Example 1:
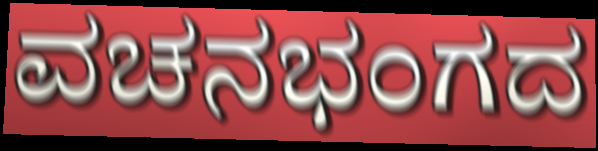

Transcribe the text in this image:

ವಚನಭಂಗದ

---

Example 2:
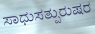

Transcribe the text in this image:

ಸಾಧುಸತ್ಪುರುಷರ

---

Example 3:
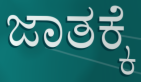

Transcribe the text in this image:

ಜಾತಕ್ಕೆ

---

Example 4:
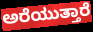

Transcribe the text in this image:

ಅರೆಯುತ್ತಾರೆ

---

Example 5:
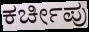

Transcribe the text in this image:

ಕರ್ಚೀಪು